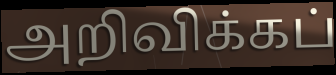
அறிவிக்கப்